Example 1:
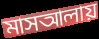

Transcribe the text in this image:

মাসআলায়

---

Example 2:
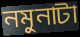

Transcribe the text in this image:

নমুনাটা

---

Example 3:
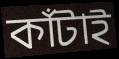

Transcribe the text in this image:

কাঁটাই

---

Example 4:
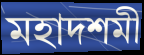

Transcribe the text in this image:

মহাদশমী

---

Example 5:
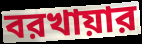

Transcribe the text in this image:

বরখায়ার